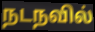
நடநவில்